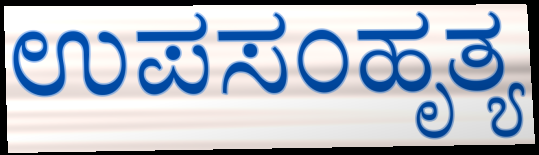
ಉಪಸಂಹೃತ್ಯ